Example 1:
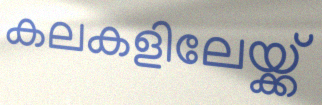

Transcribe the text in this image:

കലകളിലേയ്ക്ക്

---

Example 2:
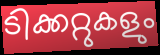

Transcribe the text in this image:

ടിക്കറ്റുകളും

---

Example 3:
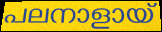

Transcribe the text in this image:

പലനാളായ്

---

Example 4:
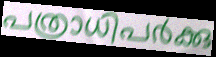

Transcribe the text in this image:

പത്രാധിപർക്കു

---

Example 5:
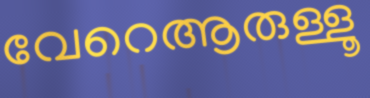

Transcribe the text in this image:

വേറെആരുള്ളൂ